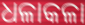
ଧଳାକଳା